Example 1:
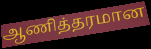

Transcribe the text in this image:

ஆணித்தரமான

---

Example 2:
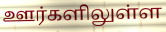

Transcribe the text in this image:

ஊர்களிலுள்ள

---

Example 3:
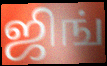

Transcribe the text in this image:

ஜிங்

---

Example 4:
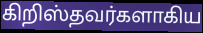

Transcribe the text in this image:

கிறிஸ்தவர்களாகிய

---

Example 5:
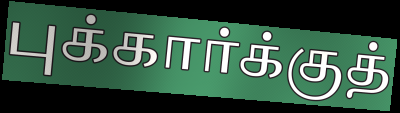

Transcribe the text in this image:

புக்கார்க்குத்